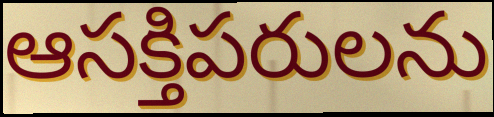
ఆసక్తిపరులను